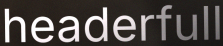
headerfull